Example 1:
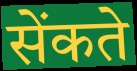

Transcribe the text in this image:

सेंकते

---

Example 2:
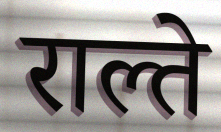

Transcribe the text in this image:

राल्ते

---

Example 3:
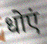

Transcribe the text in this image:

धोएं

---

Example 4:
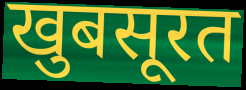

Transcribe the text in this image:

खुबसूरत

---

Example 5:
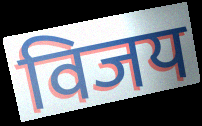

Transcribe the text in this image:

विजय